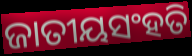
ଜାତୀୟସଂହତି